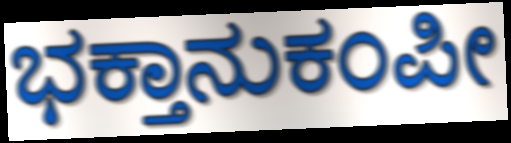
ಭಕ್ತಾನುಕಂಪೀ